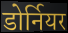
डोर्नियर